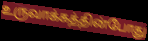
உருவாக்கத்தின்போது